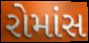
રોમાંસ